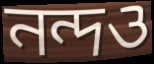
নন্দও